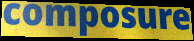
composure